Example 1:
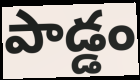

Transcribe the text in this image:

పాడ్డం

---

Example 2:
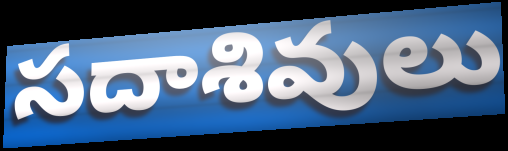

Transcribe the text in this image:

సదాశివులు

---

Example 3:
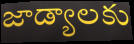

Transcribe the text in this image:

జాడ్యాలకు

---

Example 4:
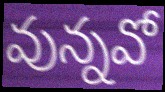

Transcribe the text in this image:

వున్నవో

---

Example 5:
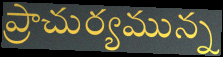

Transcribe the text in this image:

ప్రాచుర్యమున్న